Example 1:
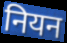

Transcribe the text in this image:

नियन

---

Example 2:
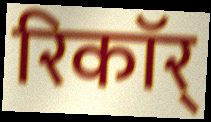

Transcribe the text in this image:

रिकॉर्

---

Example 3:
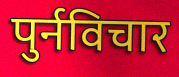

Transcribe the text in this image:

पुर्नविचार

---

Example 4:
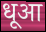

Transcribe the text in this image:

धूआ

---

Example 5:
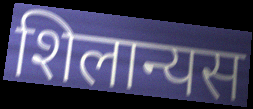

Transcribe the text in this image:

शिलान्यस